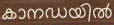
കാനഡയിൽ